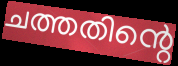
ചത്തതിന്റെ